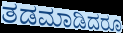
ತಡಮಾಡಿದರೂ